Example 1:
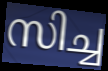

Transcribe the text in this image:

സിച്ച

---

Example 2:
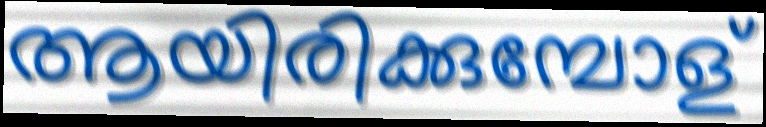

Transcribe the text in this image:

ആയിരിക്കുമ്പോള്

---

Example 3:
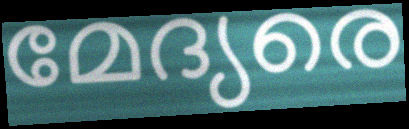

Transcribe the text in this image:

മേദ്യരെ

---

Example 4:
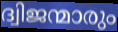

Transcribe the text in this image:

ദ്വിജന്മാരും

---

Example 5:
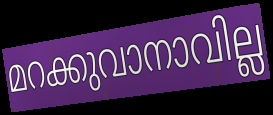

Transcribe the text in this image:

മറക്കുവാനാവില്ല